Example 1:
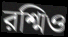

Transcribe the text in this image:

রশ্মিও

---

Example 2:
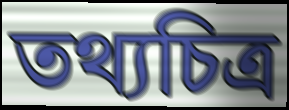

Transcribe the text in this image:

তথ্যচিত্র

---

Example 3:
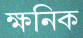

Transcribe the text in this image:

ক্ষনিক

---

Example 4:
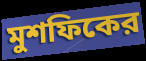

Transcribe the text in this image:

মুশফিকের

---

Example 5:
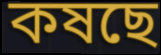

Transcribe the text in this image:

কষছে